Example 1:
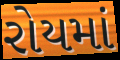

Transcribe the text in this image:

રોયમાં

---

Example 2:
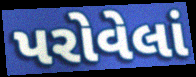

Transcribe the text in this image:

પરોવેલાં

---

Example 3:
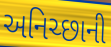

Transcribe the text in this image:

અનિચ્છાની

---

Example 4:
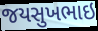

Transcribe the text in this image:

જયસુખભાઇ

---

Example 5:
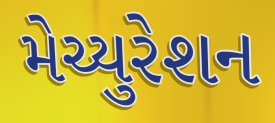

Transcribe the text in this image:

મેચ્યુરેશન